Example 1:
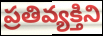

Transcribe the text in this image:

ప్రతివ్యక్తిని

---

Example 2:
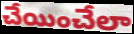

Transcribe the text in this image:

చేయించేలా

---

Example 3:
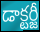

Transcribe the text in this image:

డాక్టర్జీ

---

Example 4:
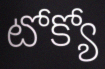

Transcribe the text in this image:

టోక్యో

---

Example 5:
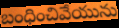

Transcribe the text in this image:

బంధించివేయును